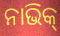
ନାଭିକ୍